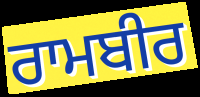
ਰਾਮਬੀਰ